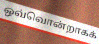
ஒவ்வொன்றாகக்